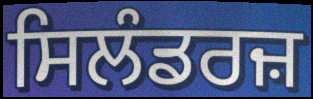
ਸਿਲੰਡਰਜ਼